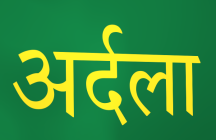
अर्दला